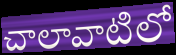
చాలావాటిలో